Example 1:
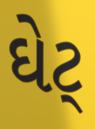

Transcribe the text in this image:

ઘેટ્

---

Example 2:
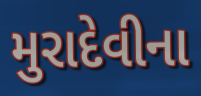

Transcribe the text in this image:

મુરાદેવીના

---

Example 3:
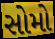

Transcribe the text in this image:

સોમો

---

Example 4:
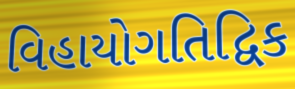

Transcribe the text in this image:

વિહાયોગતિદ્વિક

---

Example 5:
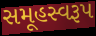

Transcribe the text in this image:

સમૂહસ્વરૂપ